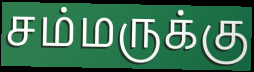
சம்மருக்கு